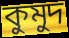
কুমুদ